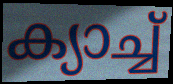
ക്യാച്ച്